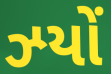
ઝ્યોં